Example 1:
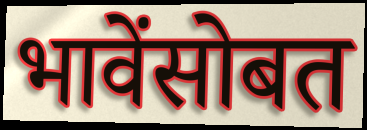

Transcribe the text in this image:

भावेंसोबत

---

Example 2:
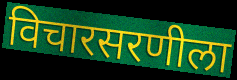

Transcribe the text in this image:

विचारसरणीला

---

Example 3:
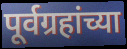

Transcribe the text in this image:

पूर्वग्रहांच्या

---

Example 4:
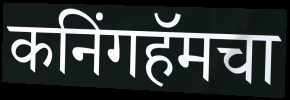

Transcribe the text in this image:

कनिंगहॅमचा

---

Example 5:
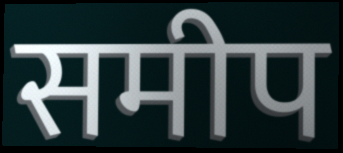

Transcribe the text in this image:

समीप